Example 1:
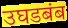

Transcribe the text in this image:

उघडबंब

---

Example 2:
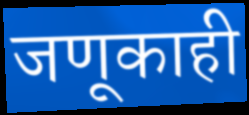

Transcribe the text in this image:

जणूकाही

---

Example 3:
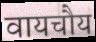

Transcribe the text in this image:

वायचौय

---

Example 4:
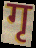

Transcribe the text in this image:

गृ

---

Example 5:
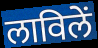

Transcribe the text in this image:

लाविलें